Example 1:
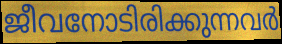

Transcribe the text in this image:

ജീവനോടിരിക്കുന്നവർ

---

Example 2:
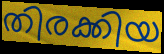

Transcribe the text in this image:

തിരക്കിയ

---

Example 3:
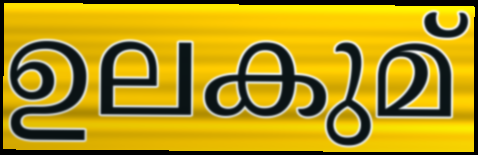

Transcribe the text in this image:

ഉലകുമ്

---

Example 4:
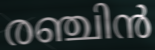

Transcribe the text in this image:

രഞ്ചിൻ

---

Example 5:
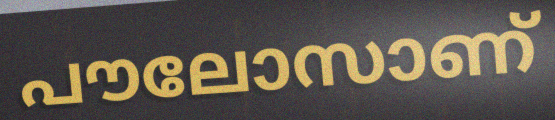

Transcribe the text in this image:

പൗലോസാണ്